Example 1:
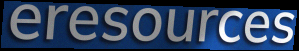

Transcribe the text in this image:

eresources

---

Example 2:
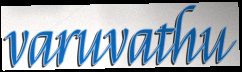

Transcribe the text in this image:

varuvathu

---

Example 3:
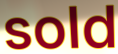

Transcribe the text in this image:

sold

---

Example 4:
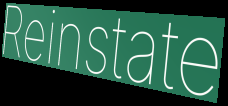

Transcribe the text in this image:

Reinstate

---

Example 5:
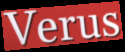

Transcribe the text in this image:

Verus